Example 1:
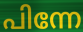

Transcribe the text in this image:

പിന്നേ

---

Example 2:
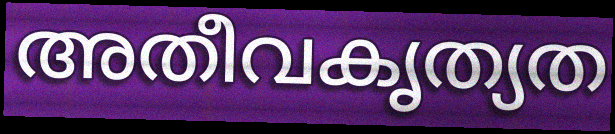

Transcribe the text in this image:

അതീവകൃത്യത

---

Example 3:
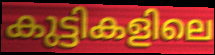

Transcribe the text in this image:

കുട്ടികളിലെ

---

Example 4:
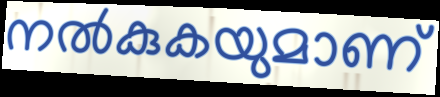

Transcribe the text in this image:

നൽകുകയുമാണ്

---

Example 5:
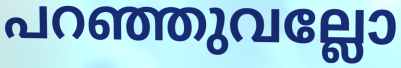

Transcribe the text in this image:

പറഞ്ഞുവല്ലോ